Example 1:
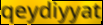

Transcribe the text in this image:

qeydiyyat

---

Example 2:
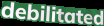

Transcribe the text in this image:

debilitated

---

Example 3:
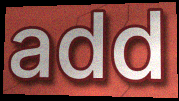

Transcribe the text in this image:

add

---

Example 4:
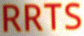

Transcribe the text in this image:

RRTS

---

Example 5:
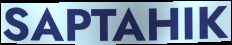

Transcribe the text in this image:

SAPTAHIK